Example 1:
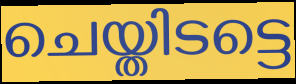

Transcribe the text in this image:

ചെയ്തിടട്ടെ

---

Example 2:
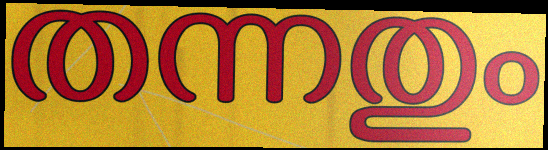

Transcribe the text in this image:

തന്നതും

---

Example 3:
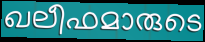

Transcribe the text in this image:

ഖലീഫമാരുടെ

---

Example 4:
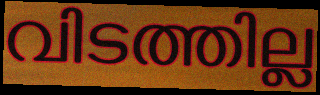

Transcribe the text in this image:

വിടത്തില്ല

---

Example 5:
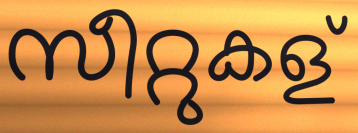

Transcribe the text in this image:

സീറ്റുകള്